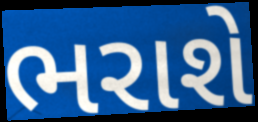
ભરાશે